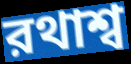
রথাশ্ব